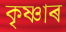
কৃষ্ণাৰ